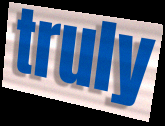
truly